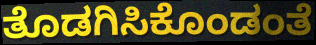
ತೊಡಗಿಸಿಕೊಂಡಂತೆ